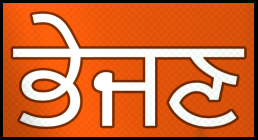
ਭੇਜਣ